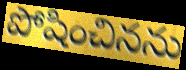
పోషించినను